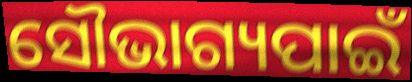
ସୌଭାଗ୍ୟପାଇଁ